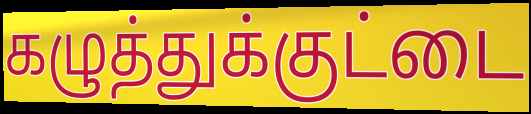
கழுத்துக்குட்டை